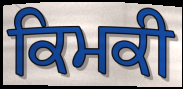
ਕਿਮਕੀ